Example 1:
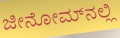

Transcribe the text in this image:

ಜೀನೋಮ್‌ನಲ್ಲಿ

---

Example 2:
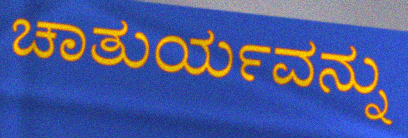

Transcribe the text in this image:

ಚಾತುರ್ಯವನ್ನು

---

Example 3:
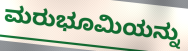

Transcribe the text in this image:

ಮರುಭೂಮಿಯನ್ನು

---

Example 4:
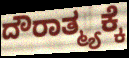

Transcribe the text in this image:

ದೌರಾತ್ಮ್ಯಕ್ಕೆ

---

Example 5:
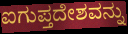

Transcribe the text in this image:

ಐಗುಪ್ತದೇಶವನ್ನು